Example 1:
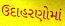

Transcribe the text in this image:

ઉદાહરણોમાં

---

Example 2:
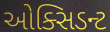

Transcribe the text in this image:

ઓક્સિડન્ટ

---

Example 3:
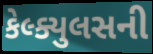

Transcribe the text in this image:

કેલ્ક્યુલસની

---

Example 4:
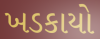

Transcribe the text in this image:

ખડકાયો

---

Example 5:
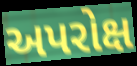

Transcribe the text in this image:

અપરોક્ષ